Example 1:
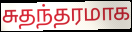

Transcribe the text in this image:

சுதந்தரமாக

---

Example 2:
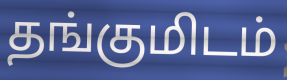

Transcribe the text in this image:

தங்குமிடம்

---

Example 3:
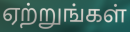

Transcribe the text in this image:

ஏற்றுங்கள்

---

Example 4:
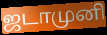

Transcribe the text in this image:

ஜடாமுனி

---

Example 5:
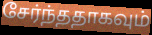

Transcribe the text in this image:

சேர்ந்ததாகவும்